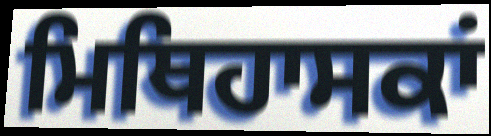
ਮਿਥਿਹਾਸਕਾਂ